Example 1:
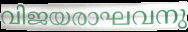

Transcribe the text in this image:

വിജയരാഘവനു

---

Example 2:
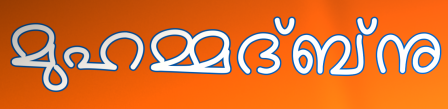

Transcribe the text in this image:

മുഹമ്മദ്ബ്നു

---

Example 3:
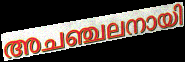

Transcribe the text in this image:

അചഞ്ചലനായി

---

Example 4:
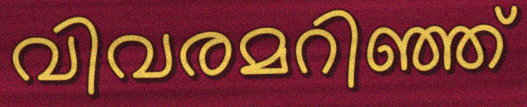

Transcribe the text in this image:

വിവരമറിഞ്ഞ്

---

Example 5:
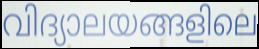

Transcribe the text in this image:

വിദ്യാലയങ്ങളിലെ